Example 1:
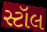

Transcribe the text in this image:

સ્ટૉલ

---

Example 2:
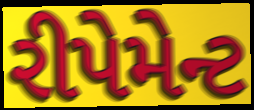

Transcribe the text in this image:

રીપેમેન્ટ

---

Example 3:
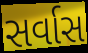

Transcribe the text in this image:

સર્વાસ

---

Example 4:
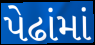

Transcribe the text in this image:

પેઢાંમાં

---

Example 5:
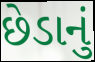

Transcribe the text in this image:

છેડાનું